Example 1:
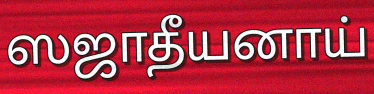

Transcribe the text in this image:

ஸஜாதீயனாய்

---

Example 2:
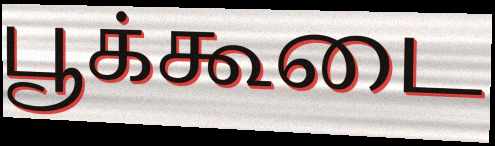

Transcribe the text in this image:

பூக்கூடை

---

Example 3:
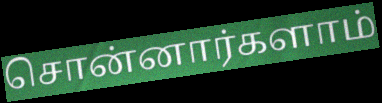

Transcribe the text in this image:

சொன்னார்களாம்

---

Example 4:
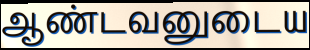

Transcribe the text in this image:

ஆண்டவனுடைய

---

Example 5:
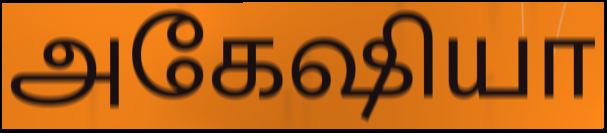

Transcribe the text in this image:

அகேஷியா